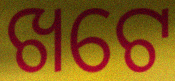
ଖଟେ